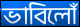
ভাবিলোঁ